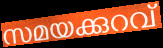
സമയക്കുറവ്